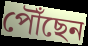
পৌঁছেন